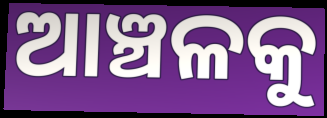
ଆଞ୍ଚଳକୁ